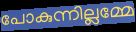
പോകുന്നില്ലമ്മേ